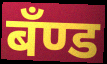
बँण्ड